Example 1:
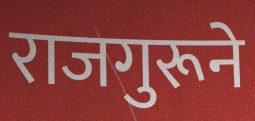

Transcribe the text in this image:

राजगुरूने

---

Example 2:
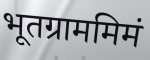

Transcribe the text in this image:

भूतग्राममिमं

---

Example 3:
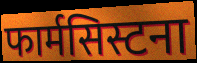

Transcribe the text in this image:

फार्मसिस्टना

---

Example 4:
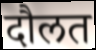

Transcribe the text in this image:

दौलत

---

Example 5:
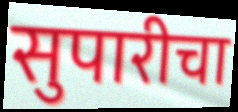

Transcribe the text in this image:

सुपारीचा